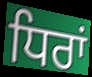
ਧਿਰਾਂ